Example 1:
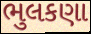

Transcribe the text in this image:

ભુલકણા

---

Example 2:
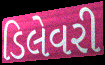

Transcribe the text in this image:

ડિલેવરી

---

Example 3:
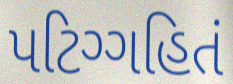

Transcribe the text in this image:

પટિગ્ગહિતં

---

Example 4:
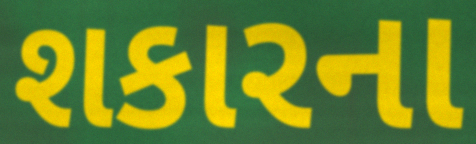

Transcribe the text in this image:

શકારના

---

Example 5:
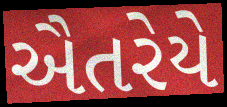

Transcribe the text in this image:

ઐતરેયે